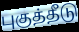
புகுத்தீடு